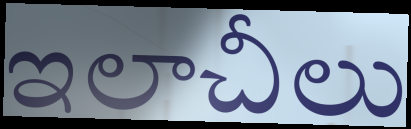
ఇలాచీలు